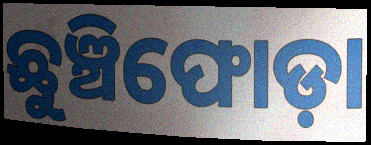
ଛୁଞ୍ଚିଫୋଡ଼ା